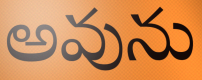
అవును